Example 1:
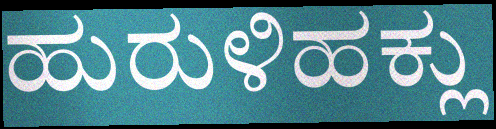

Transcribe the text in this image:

ಹುರುಳಿಹಕ್ಲು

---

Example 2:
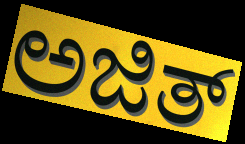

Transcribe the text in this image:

ಅಜಿತ್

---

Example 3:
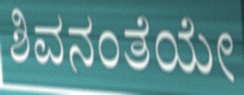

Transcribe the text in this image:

ಶಿವನಂತೆಯೇ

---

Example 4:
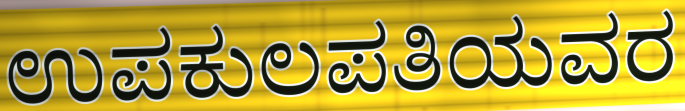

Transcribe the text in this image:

ಉಪಕುಲಪತಿಯವರ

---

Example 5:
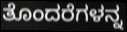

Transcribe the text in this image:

ತೊಂದರೆಗಳನ್ನ